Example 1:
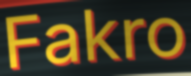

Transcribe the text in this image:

Fakro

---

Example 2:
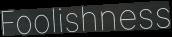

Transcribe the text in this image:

Foolishness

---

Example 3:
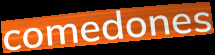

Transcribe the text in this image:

comedones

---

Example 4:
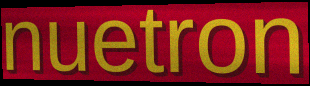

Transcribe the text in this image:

nuetron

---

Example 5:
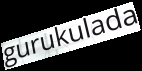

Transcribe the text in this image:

gurukulada